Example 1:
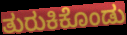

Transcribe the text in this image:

ತುರುಕಿಕೊಂಡು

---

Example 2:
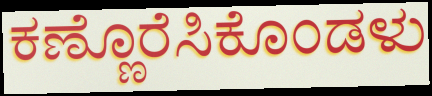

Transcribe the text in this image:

ಕಣ್ಣೊರೆಸಿಕೊಂಡಳು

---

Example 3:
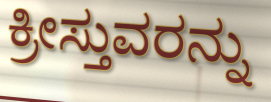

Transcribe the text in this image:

ಕ್ರೀಸ್ತುವರನ್ನು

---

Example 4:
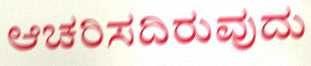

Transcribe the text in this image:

ಆಚರಿಸದಿರುವುದು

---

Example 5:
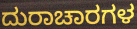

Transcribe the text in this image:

ದುರಾಚಾರಗಳ